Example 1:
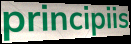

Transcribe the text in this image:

principiis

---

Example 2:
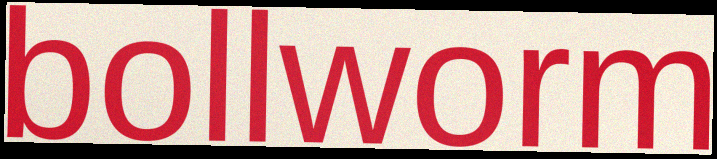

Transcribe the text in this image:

bollworm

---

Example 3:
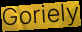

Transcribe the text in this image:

Goriely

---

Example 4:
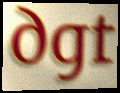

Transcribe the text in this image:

dgt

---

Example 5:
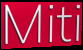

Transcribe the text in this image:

Miti